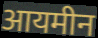
आयमीन